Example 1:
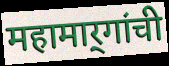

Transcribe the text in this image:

महामार्गांची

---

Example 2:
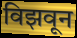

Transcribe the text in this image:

विझवून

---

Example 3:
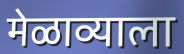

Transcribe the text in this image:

मेळाव्याला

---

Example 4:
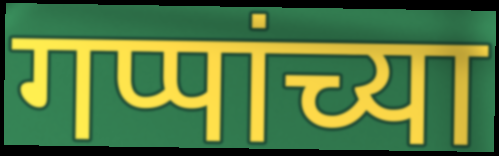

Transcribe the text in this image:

गप्पांच्या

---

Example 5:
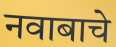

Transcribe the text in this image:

नवाबाचे